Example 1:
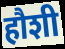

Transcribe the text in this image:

हौशी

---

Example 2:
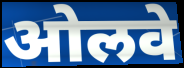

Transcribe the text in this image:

ओलवे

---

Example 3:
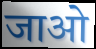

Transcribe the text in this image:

जाओ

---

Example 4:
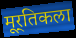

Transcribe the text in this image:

मूर्तिकला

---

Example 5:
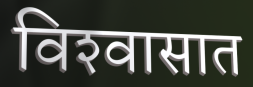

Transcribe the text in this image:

विश्वासात